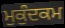
ਮੁਕੁੰਦਕਮ